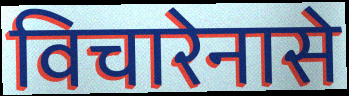
विचारेनासे